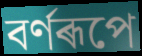
বৰ্ণৰূপে